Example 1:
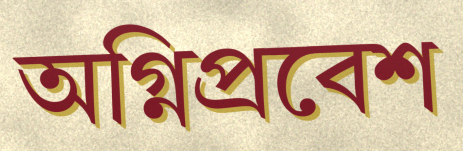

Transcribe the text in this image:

অগ্নিপ্রবেশ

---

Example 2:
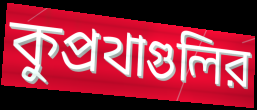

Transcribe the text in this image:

কুপ্রথাগুলির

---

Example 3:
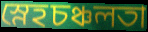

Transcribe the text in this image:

স্নেহচঞ্চলতা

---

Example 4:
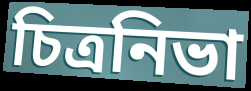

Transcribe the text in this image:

চিত্রনিভা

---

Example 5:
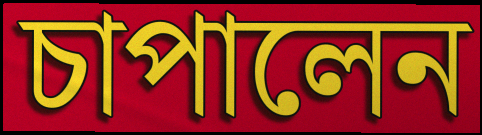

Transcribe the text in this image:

চাপালেন